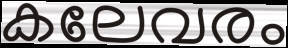
കലേവരം